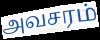
அவசரம்